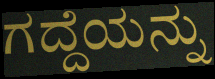
ಗದ್ದೆಯನ್ನು